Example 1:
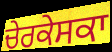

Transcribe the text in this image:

ਚੇਰਕੇਸਕਾ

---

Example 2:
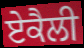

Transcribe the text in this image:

ਏਕੈਲੀ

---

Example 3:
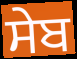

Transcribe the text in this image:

ਸੇਬ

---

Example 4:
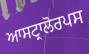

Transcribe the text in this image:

ਆਸਟ੍ਰਾਲੋਰਪਸ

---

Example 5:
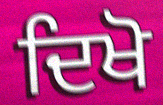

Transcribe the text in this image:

ਦਿਖੋ